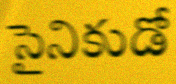
సైనికుడో